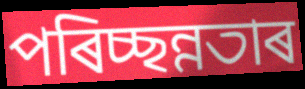
পৰিচ্ছন্নতাৰ